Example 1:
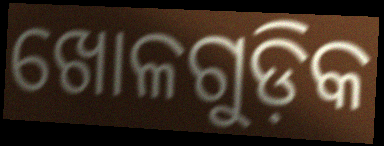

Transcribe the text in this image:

ଖୋଳଗୁଡ଼ିକ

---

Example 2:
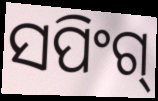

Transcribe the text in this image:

ସପିଂଗ୍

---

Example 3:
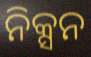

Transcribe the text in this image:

ନିକ୍ସନ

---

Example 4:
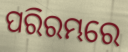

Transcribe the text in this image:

ପରିରମ୍ଭରେ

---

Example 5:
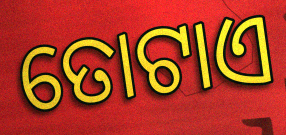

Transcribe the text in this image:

ତୋଟାଏ